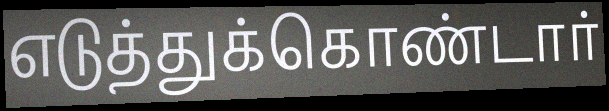
எடுத்துக்கொண்டார்